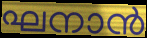
ഘനാൻ